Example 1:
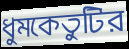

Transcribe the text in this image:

ধুমকেতুটির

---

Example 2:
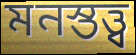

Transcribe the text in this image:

মনস্তত্ত্ব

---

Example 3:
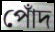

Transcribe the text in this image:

পোঁদ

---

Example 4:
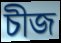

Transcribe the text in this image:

চীজ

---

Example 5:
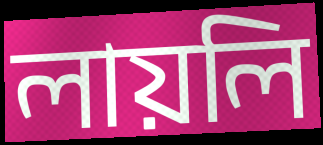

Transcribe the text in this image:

লায়লি